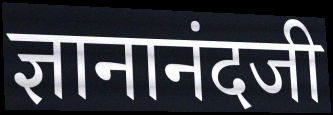
ज्ञानानंदजी